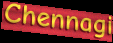
Chennagi